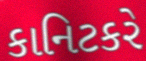
કાનિટકરે